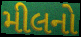
મીલનો